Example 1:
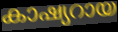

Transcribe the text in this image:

കാഷ്യറായ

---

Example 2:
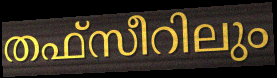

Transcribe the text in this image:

തഫ്സീറിലും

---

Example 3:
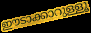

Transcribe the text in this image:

ഈടാക്കാറുള്ളൂ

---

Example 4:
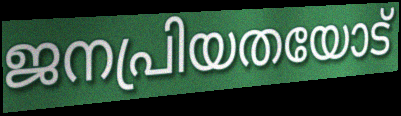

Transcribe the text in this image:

ജനപ്രിയതയോട്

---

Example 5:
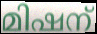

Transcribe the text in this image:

മിഷന്